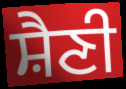
ਸ਼ੈਣੀ